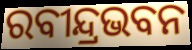
ରବୀନ୍ଦ୍ରଭବନ